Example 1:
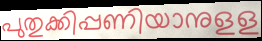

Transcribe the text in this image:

പുതുക്കിപ്പണിയാനുളള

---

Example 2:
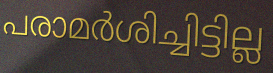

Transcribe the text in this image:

പരാമർശിച്ചിട്ടില്ല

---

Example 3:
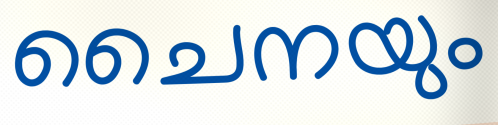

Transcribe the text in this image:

ചൈനയും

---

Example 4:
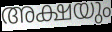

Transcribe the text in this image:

അക്ഷയും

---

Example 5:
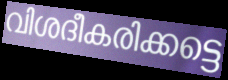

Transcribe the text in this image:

വിശദീകരിക്കട്ടെ